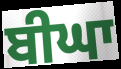
ਬੀਘਾ